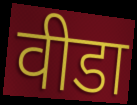
वीडा